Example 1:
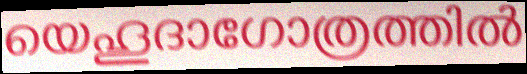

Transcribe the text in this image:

യെഹൂദാഗോത്രത്തിൽ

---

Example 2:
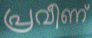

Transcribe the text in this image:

പ്രവീണ്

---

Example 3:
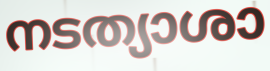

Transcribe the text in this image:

നടത്യാശാ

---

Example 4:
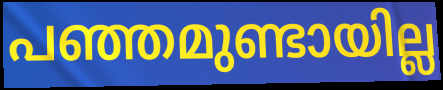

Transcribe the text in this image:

പഞ്ഞമുണ്ടായില്ല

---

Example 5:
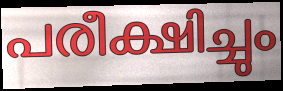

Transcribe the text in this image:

പരീക്ഷിച്ചും